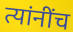
त्यांनींच